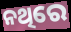
ନଥିରେ